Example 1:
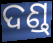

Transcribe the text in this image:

ଦଣ୍ଡ୍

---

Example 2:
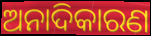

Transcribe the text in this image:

ଅନାଦିକାରଣ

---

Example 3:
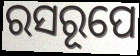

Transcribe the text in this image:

ରସରୂପେ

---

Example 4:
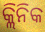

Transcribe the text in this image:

କ୍ଲିନିକ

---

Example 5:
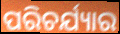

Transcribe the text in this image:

ପରିଚର୍ଯ୍ୟାର